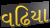
વઢિયા